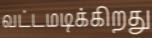
வட்டமடிக்கிறது